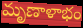
మృణాళాభం